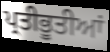
ਪ੍ਰਤੀਭੂਤੀਆਂ